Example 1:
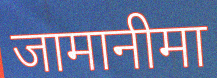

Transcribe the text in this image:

जामानीमा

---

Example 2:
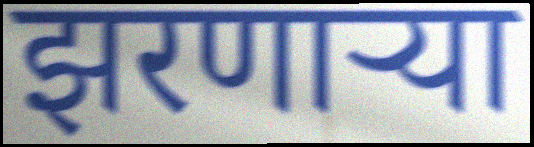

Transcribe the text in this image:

झरणाऱ्या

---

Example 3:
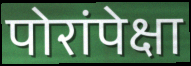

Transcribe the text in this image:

पोरांपेक्षा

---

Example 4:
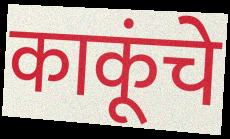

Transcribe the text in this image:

काकूंचे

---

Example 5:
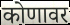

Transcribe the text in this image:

कोणावर